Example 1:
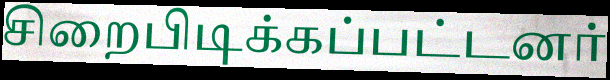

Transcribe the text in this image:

சிறைபிடிக்கப்பட்டனர்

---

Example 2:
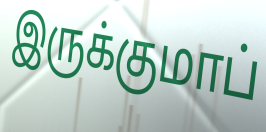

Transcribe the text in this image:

இருக்குமாப்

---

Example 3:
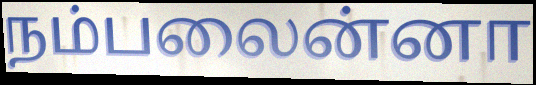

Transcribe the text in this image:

நம்பலைன்னா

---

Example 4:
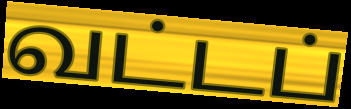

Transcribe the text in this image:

வட்டப்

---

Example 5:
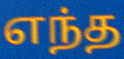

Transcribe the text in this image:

எந்த